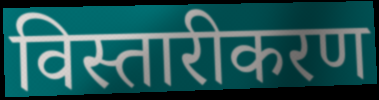
विस्तारीकरण